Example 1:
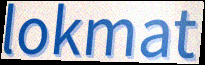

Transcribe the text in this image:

lokmat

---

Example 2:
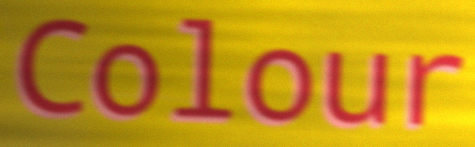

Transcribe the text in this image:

Colour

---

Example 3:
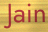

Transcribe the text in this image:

Jain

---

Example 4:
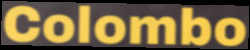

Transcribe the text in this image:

Colombo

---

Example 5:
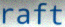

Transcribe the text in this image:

raft